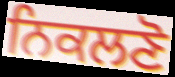
ਨਿਕਲਣੋ